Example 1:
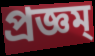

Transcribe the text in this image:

প্রজ্ঞম্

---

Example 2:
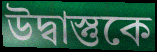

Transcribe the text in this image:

উদ্বাস্তুকে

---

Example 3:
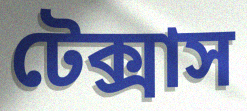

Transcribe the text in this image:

টেক্সাস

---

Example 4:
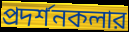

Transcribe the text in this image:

প্রদর্শনকলার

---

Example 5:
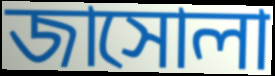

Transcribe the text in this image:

জাসোলা